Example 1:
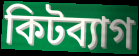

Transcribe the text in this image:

কিটব্যাগ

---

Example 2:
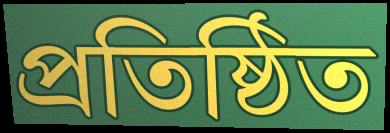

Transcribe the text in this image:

প্রতিষ্ঠিত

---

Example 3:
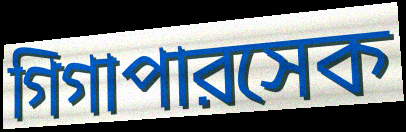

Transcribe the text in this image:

গিগাপারসেক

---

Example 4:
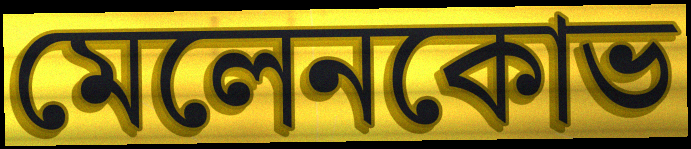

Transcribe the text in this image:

মেলেনকোভ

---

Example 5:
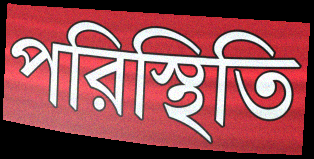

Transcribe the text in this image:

পরিস্থিতি